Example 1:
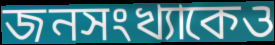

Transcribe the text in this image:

জনসংখ্যাকেও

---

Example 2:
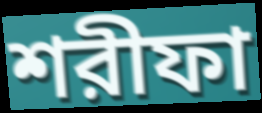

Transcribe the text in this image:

শরীফা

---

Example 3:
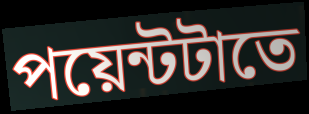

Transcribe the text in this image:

পয়েন্টটাতে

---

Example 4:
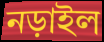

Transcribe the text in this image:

নড়াইল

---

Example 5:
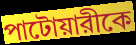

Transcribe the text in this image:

পাটোয়ারীকে